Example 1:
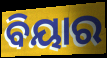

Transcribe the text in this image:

ବିୟାର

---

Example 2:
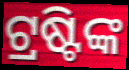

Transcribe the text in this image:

ଟ୍ରଷ୍ଟିଙ୍କ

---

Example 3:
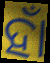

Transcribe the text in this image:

ହାଁ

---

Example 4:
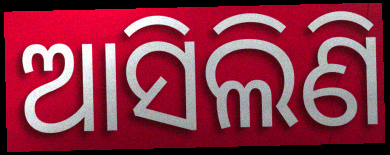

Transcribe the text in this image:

ଆସିଲିଣି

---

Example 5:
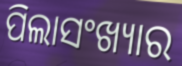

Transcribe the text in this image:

ପିଲାସଂଖ୍ୟାର